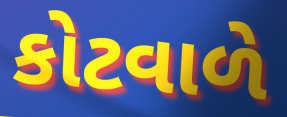
કોટવાળે